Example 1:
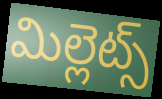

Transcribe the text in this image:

మిల్లెట్స్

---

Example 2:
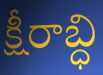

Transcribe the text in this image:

క్షీరాబ్ధి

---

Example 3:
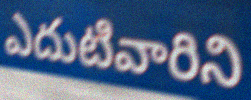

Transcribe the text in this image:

ఎదుటివారిని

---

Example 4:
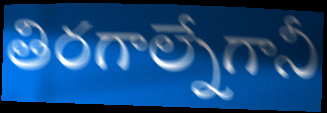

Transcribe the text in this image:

తిరగాల్నేగానీ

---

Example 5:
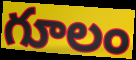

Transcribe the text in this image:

గూలం